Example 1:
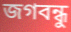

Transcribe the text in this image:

জগবন্ধু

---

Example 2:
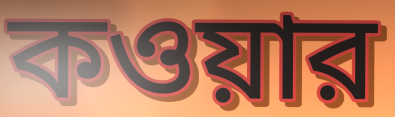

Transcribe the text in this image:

কওয়ার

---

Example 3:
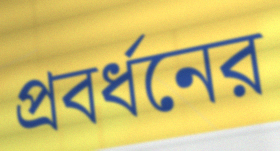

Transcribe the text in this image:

প্রবর্ধনের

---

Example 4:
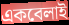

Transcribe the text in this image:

একবেলাই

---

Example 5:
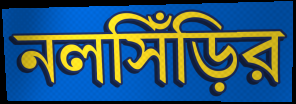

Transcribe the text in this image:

নলসিঁড়ির